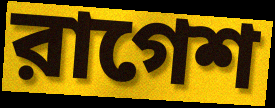
রাগেশ